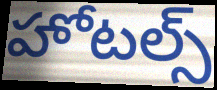
హోటల్స్